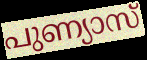
പുണ്യാസ്